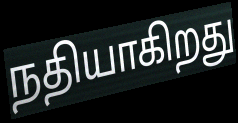
நதியாகிறது